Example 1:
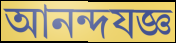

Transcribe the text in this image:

আনন্দযজ্ঞ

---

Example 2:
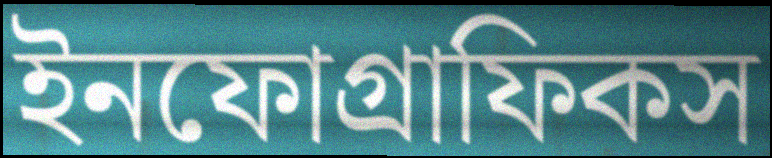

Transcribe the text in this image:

ইনফোগ্রাফিকস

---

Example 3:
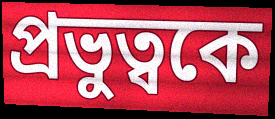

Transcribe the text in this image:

প্রভুত্বকে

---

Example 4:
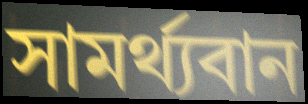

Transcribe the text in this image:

সামর্থ্যবান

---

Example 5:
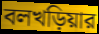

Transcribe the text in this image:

বলখড়িয়ার